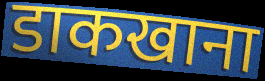
डाकखाना